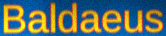
Baldaeus